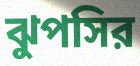
ঝুপসির